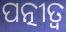
ପତ୍ନୀତ୍ୱ